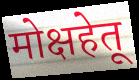
मोक्षहेतू